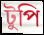
টুপি